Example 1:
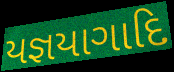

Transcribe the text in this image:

યજ્ઞયાગાદિ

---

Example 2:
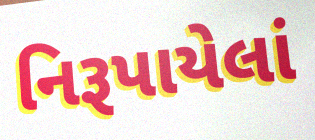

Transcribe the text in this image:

નિરૂપાયેલાં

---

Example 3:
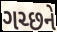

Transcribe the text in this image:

ગચ્છને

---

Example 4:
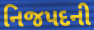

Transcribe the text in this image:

નિજપદની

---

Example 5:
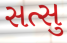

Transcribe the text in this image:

સત્સુ